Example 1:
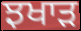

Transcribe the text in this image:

ਝਖਾੜ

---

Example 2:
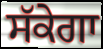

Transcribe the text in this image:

ਸੱਕੇਗਾ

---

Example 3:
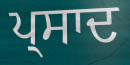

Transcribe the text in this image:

ਪ੍ਸਾਦ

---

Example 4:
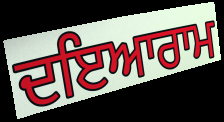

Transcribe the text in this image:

ਦਇਆਰਾਮ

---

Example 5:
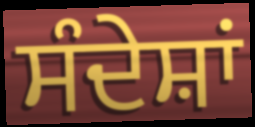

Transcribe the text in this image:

ਸੰਦੇਸ਼ਾਂ